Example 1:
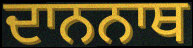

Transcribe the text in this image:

ਦਾਨਨਾਥ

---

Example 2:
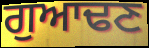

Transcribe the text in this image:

ਗੁਆਢਣ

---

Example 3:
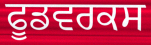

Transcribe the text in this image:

ਫੂਡਵਰਕਸ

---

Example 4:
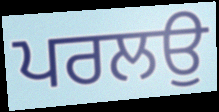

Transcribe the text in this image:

ਪਰਲਉ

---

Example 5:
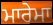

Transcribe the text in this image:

ਮਾਰੇਮਾ